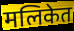
मलिकेत